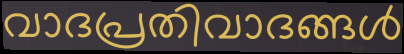
വാദപ്രതിവാദങ്ങൾ